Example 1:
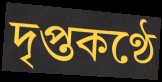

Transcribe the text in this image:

দৃপ্তকণ্ঠে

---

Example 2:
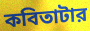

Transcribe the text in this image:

কবিতাটার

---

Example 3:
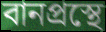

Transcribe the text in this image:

বানপ্রস্থে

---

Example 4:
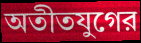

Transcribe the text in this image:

অতীতযুগের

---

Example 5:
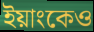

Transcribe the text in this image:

ইয়াংকেও